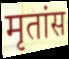
मृतांस